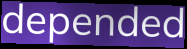
depended